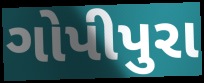
ગોપીપુરા